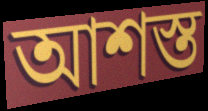
আশস্ত